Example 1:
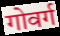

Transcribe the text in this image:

गोवर्ग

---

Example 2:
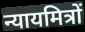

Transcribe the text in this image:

न्यायमित्रों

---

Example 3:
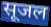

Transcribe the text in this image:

सूजल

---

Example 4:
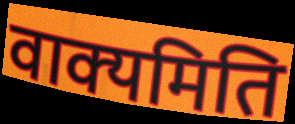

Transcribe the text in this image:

वाक्यमिति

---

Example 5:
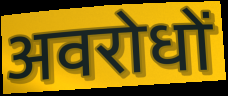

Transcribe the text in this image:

अवरोधों